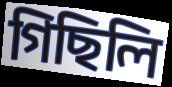
গিছিলি